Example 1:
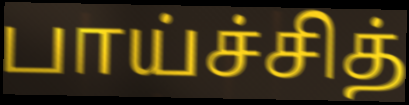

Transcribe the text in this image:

பாய்ச்சித்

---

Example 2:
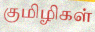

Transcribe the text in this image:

குமிழிகள்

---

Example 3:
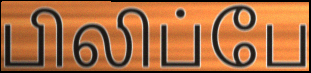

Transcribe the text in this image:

பிலிப்பே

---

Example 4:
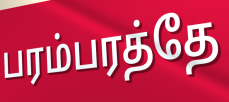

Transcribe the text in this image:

பரம்பரத்தே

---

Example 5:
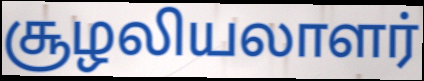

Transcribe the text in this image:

சூழலியலாளர்